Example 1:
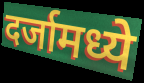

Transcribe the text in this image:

दर्जामध्ये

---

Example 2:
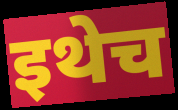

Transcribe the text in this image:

इथेच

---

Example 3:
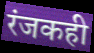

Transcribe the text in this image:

रंजकही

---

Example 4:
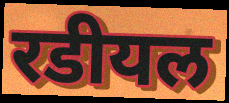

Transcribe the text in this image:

रडीयल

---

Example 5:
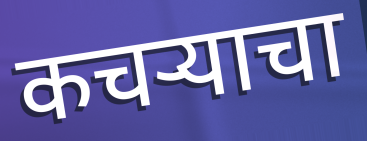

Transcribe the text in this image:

कचऱ्याचा